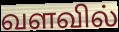
வளவில்